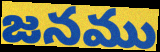
జనము